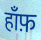
हाँफ़